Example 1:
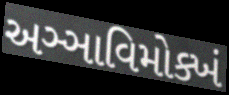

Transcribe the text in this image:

અઞ્ઞાવિમોક્ખં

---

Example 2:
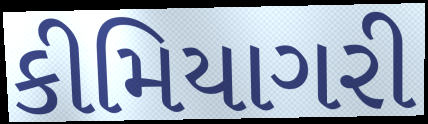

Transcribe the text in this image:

કીમિયાગરી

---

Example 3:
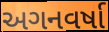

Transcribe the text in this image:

અગનવર્ષા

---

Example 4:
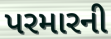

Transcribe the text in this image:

પરમારની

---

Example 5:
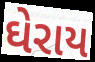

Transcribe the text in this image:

ઘેરાય